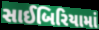
સાઈબિરિયામાં